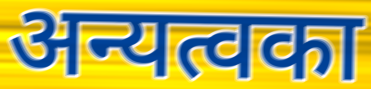
अन्यत्वका